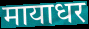
मायाधर